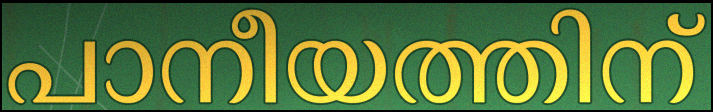
പാനീയത്തിന്